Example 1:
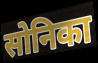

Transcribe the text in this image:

सोनिका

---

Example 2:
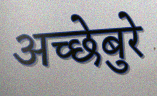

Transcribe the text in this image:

अच्छेबुरे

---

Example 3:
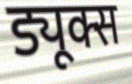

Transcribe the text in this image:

ड्यूक्स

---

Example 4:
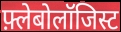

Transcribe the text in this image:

फ़्लेबोलॉजिस्ट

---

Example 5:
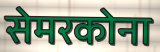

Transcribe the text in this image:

सेमरकोना